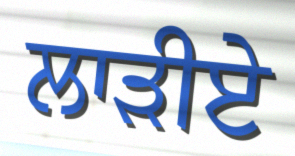
ਲਾੜੀਏ